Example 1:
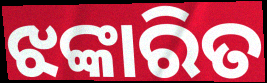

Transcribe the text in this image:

ଝଙ୍କାରିତ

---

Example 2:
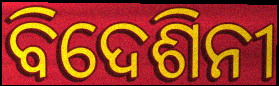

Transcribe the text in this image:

ବିଦେଶିନୀ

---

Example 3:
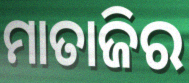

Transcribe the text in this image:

ମାତାଜିର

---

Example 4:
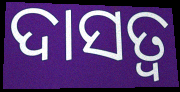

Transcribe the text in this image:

ଦାସତ୍ୱ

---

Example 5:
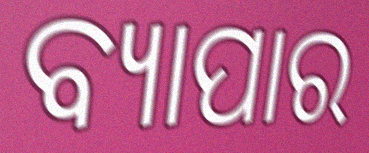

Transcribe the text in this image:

ବ୍ୟାପାର